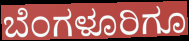
ಬೆಂಗಳೂರಿಗೂ